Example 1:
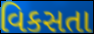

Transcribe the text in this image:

વિકસતા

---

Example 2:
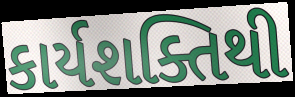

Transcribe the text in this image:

કાર્યશક્તિથી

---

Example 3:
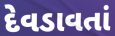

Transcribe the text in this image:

દેવડાવતાં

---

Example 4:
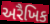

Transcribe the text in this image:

અરૈખિક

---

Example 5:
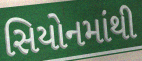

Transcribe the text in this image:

સિયોનમાંથી